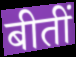
बीतीं